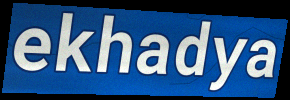
ekhadya